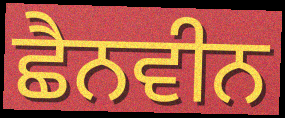
ਛੈਨਵੀਨ